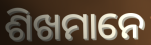
ଶିଖମାନେ